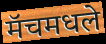
मॅचमधले